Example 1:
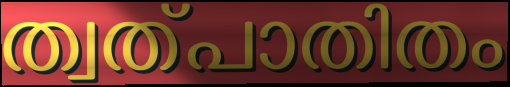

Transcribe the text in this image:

ത്വത്പാതിതം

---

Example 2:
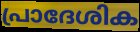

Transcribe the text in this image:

പ്രാദേശിക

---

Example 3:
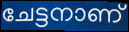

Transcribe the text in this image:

ചേട്ടനാണ്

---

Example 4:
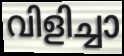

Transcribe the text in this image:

വിളിച്ചാ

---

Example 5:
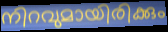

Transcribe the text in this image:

നിറവുമായിരിക്കും